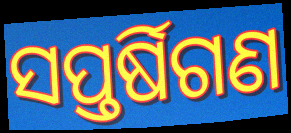
ସପ୍ତର୍ଷିଗଣ